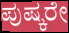
ಪುಷ್ಕರೇ